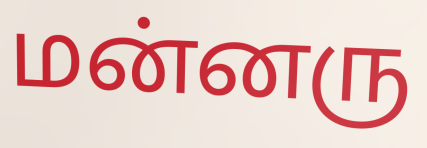
மன்னரு